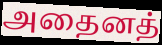
அதைனத்